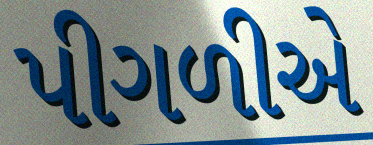
પીગળીએ